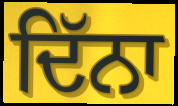
ਦਿੱਨਾ